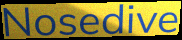
Nosedive